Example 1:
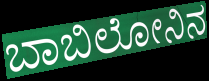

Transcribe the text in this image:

ಬಾಬಿಲೋನಿನ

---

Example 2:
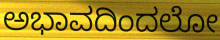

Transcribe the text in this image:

ಅಭಾವದಿಂದಲೋ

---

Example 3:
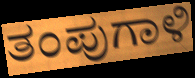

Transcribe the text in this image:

ತಂಪುಗಾಳಿ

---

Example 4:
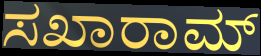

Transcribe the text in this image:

ಸಖಾರಾಮ್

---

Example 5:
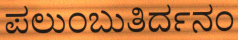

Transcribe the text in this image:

ಪಲುಂಬುತಿರ್ದನಂ